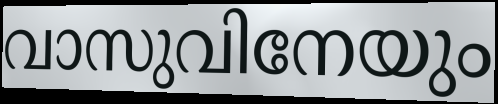
വാസുവിനേയും